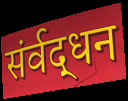
संर्वद्धन